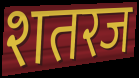
शतरज